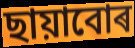
ছায়াবোৰ